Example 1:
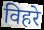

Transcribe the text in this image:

विहरे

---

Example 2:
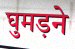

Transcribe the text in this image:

घुमड़ने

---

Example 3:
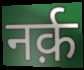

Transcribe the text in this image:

नर्क़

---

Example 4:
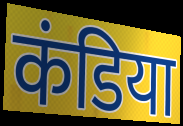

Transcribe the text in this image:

कंडिया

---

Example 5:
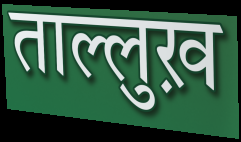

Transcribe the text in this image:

ताल्लुख़